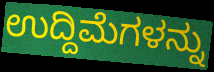
ಉದ್ದಿಮೆಗಳನ್ನು